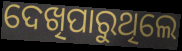
ଦେଖିପାରୁଥିଲେ